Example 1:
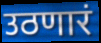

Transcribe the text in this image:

उठणारं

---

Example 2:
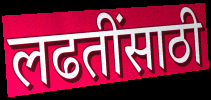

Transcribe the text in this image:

लढतींसाठी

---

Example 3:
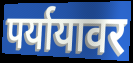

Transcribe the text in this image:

पर्यायावर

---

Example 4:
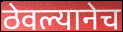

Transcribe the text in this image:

ठेवल्यानेच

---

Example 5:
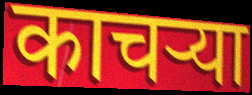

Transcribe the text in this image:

काचऱ्या